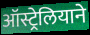
ऑस्ट्रेलियाने